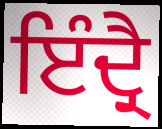
ਇੰਦ੍ਰੈ